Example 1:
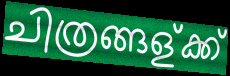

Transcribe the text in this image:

ചിത്രങ്ങള്ക്ക്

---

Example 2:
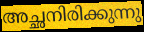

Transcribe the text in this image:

അച്ഛനിരിക്കുന്നു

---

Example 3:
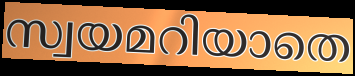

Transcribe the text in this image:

സ്വയമറിയാതെ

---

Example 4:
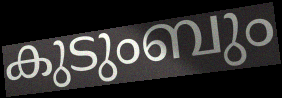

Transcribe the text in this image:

കുടുംബും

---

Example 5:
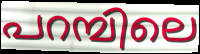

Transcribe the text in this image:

പറമ്പിലെ